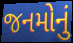
જનમોનું